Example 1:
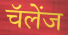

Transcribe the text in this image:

चॅलेंज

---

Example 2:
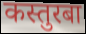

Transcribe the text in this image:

कस्तुरबा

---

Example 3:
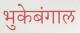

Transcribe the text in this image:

भुकेबंगाल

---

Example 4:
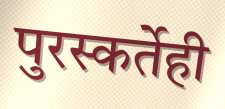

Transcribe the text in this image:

पुरस्कर्तेही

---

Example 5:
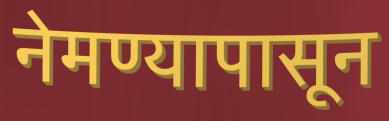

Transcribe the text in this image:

नेमण्यापासून